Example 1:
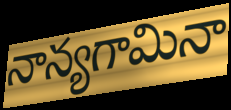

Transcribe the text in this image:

నాన్యగామినా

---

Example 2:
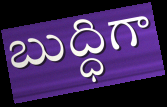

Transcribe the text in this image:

బుద్ధిగా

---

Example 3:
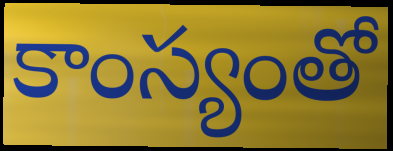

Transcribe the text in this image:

కాంస్యంతో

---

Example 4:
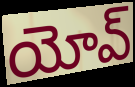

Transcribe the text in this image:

యోవ్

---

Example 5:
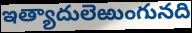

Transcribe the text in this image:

ఇత్యాదులెఱుంగునది